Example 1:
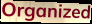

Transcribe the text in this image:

Organized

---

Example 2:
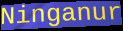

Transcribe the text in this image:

Ninganur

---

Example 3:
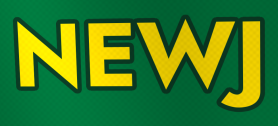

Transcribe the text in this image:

NEWJ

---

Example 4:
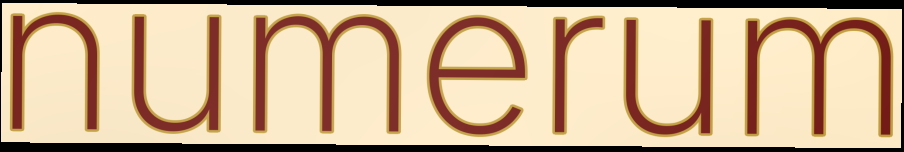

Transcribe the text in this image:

numerum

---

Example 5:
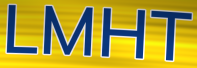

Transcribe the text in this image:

LMHT